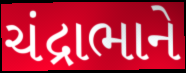
ચંદ્રાભાને